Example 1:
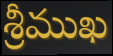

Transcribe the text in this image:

శ్రీముఖ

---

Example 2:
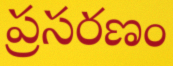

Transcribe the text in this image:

ప్రసరణం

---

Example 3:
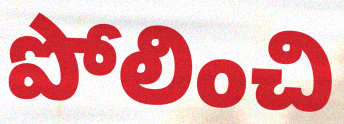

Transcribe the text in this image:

పోలించి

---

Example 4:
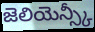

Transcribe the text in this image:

జెలియెన్స్కీ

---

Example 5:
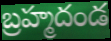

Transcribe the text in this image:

బ్రహ్మదండ